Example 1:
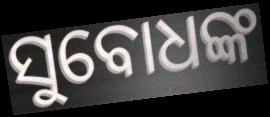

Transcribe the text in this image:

ସୁବୋଧଙ୍କ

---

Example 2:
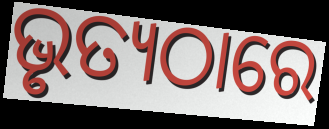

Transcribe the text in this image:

ଭୃତ୍ୟଠାରେ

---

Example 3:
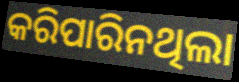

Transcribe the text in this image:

କରିପାରିନଥିଲା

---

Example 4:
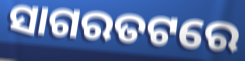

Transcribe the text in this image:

ସାଗରତଟରେ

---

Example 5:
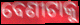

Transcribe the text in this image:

ବେଣୀଟାକୁ